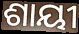
ଶାୟୀ